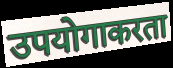
उपयोगाकरता